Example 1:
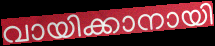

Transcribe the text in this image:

വായിക്കാനായി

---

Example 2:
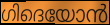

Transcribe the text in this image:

ഗിദെയോൻ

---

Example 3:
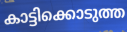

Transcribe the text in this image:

കാട്ടിക്കൊടുത്ത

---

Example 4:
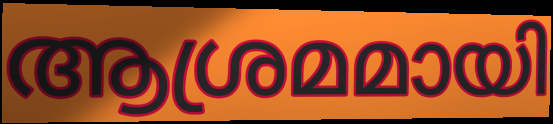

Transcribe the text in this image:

ആശ്രമമായി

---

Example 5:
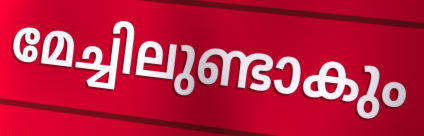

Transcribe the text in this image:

മേച്ചിലുണ്ടാകും